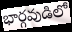
భార్గవుడిలో